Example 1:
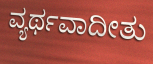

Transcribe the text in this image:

ವ್ಯರ್ಥವಾದೀತು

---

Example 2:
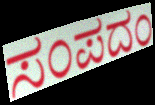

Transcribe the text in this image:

ಸಂಪದಂ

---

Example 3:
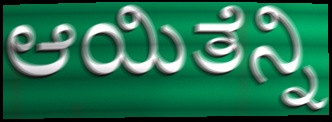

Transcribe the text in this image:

ಆಯಿತೆನ್ನಿ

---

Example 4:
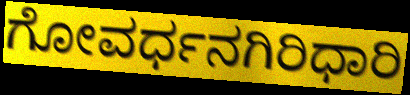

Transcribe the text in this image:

ಗೋವರ್ಧನಗಿರಿಧಾರಿ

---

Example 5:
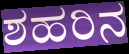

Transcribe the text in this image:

ಶಹರಿನ